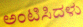
ಅಂಟಿಸಿದಳು